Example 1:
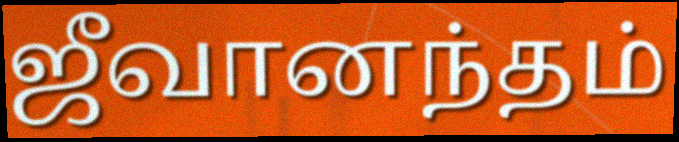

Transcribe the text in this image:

ஜீவானந்தம்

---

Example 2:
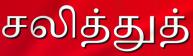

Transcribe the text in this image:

சலித்துத்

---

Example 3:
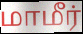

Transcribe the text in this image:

மாமீர்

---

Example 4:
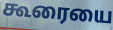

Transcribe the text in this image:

கூரையை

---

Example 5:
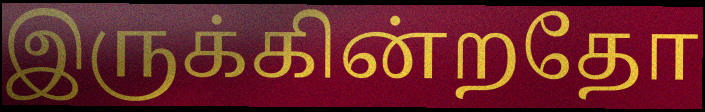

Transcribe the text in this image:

இருக்கின்றதோ